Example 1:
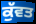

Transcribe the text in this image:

ਕੁੱਵਤ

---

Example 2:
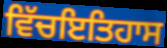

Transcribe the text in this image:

ਵਿੱਚਇਤਿਹਾਸ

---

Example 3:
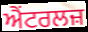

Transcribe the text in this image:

ਐਂਟਰਲਜ਼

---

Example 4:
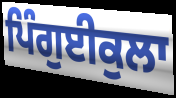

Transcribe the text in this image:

ਪਿੰਗੁਈਕੁਲਾ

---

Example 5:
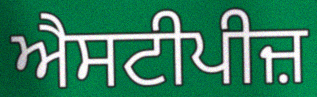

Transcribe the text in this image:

ਐਸਟੀਪੀਜ਼